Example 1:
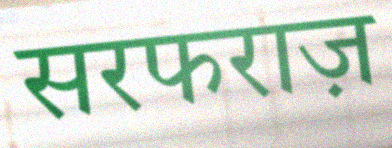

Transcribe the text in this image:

सरफराज़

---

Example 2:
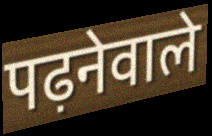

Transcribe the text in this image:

पढ़नेवाले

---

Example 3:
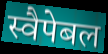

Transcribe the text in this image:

स्वैपेबल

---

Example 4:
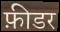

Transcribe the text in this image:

फ़ीडर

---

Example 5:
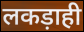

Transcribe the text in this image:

लकड़ाही